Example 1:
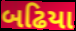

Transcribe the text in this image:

બઢિયા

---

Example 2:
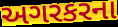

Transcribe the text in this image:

અગરકરના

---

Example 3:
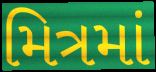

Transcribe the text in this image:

મિત્રમાં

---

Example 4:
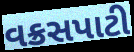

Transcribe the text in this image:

વક્રસપાટી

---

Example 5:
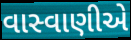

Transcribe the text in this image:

વાસ્વાણીએ